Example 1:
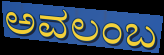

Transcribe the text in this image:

ಅವಲಂಬ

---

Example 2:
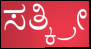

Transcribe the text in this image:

ಸತ್ಕ್ರೀ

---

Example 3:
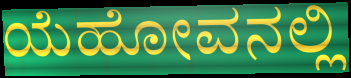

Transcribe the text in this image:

ಯೆಹೋವನಲ್ಲಿ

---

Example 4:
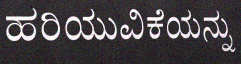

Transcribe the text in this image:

ಹರಿಯುವಿಕೆಯನ್ನು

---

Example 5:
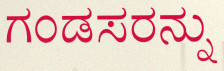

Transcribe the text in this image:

ಗಂಡಸರನ್ನು